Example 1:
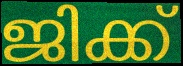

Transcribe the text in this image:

ജിക്ക്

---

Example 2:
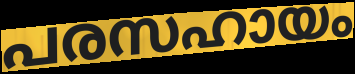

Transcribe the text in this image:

പരസഹായം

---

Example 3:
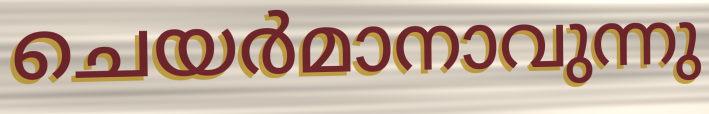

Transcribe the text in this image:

ചെയർമാനാവുന്നു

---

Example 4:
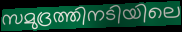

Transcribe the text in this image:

സമുദ്രത്തിനടിയിലെ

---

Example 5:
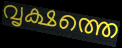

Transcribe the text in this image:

വൃക്ഷത്തെ